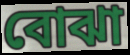
বোঝা